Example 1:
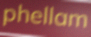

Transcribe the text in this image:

phellam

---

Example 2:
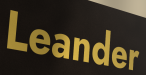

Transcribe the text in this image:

Leander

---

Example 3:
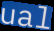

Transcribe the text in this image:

ual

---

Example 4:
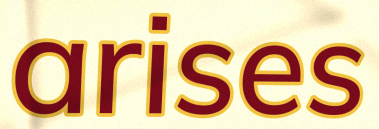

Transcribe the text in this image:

arises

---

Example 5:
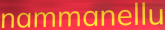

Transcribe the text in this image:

nammanellu